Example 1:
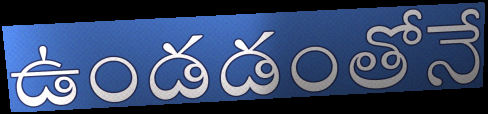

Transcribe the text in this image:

ఉండడంతోనే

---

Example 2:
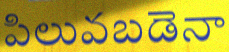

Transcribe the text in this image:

పిలువబడెనా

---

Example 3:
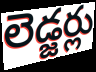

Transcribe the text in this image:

లెడ్జర్లు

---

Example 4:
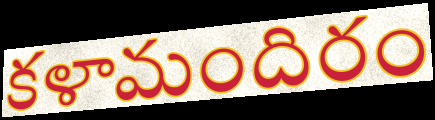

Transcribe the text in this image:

కళామందిరం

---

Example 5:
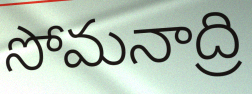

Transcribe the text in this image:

సోమనాద్రి